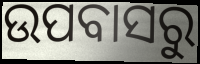
ଉପବାସରୁ